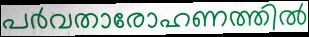
പർവതാരോഹണത്തിൽ